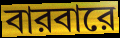
বারবারে